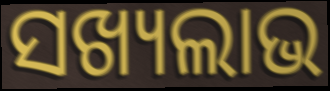
ସଖ୍ୟଲାଭ